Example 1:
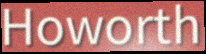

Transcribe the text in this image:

Howorth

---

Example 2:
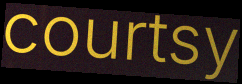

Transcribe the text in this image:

courtsy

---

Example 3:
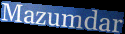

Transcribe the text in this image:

Mazumdar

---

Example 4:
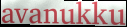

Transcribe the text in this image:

avanukku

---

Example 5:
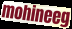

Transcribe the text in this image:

mohineeg